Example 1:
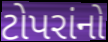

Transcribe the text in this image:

ટોપરાંનો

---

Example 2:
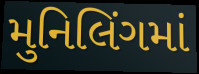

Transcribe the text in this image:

મુનિલિંગમાં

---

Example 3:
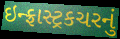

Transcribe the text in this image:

ઇન્ફ્રાસ્ટ્રકચરનું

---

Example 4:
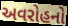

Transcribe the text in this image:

અવરોહનો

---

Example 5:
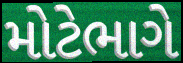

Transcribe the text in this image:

મોટેભાગે